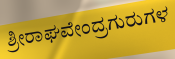
ಶ್ರೀರಾಘವೇಂದ್ರಗುರುಗಳ